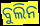
ବୁଲିନ